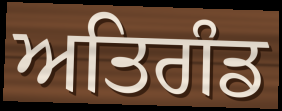
ਅਤਿਗੰਡ